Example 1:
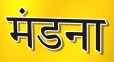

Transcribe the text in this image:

मंडना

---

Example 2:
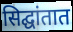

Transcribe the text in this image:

सिद्घांतात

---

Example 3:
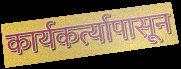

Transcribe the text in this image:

कार्यकर्त्यापासून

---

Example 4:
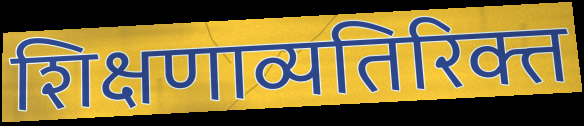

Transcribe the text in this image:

शिक्षणाव्यतिरिक्त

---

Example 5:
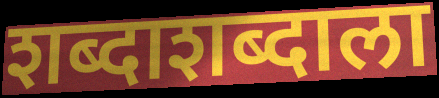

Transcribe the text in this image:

शब्दाशब्दाला